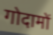
गोदामों